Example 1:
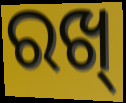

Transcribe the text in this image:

ରଖ୍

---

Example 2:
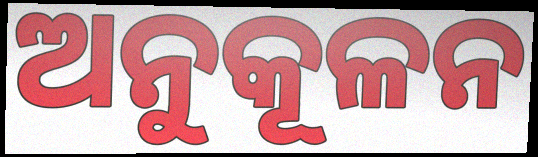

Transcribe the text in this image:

ଅନୁକୂଳନ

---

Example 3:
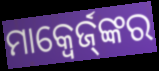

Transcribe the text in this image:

ମାକ୍ୱେର୍ଜ୍‌ଙ୍କର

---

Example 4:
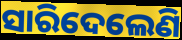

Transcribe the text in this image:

ସାରିଦେଲେଣି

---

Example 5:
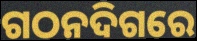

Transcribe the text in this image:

ଗଠନଦିଗରେ